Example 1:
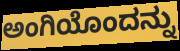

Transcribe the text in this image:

ಅಂಗಿಯೊಂದನ್ನು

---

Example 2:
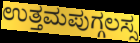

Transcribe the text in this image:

ಉತ್ತಮಪುಗ್ಗಲಸ್ಸ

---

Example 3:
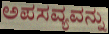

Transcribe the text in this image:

ಅಪಸವ್ಯವನ್ನು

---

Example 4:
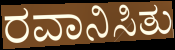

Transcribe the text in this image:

ರವಾನಿಸಿತು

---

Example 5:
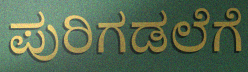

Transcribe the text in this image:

ಪುರಿಗಡಲೆಗೆ